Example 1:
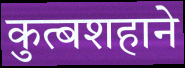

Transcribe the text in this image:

कुत्बशहाने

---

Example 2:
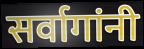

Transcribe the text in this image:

सर्वागांनी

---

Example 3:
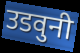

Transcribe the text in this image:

उडवुनी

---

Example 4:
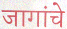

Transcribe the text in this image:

जागांचे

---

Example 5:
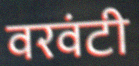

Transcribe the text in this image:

वरवंटी